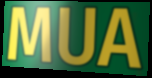
MUA